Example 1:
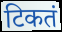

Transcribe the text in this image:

टिकतं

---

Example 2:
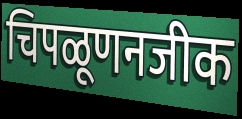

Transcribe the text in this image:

चिपळूणनजीक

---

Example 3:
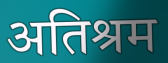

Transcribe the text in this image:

अतिश्रम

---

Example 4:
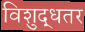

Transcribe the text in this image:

विशुद्धतर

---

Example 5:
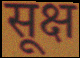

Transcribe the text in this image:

सूक्ष